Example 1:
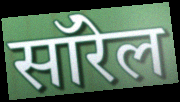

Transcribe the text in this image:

सॉरेल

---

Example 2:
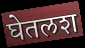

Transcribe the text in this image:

घेतलश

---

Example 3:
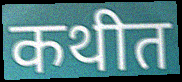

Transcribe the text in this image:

कथीत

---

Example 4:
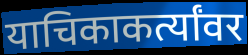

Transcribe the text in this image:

याचिकाकर्त्यांवर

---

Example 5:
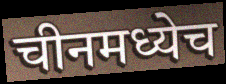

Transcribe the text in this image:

चीनमध्येच